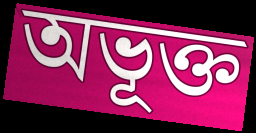
অভূক্ত